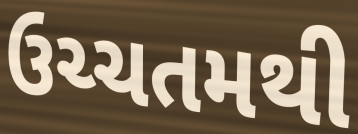
ઉચ્ચતમથી